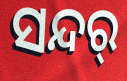
ସନ୍ଦର୍